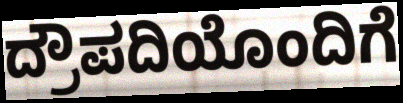
ದ್ರೌಪದಿಯೊಂದಿಗೆ